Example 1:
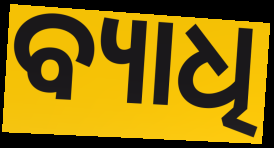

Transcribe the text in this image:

ବ୍ୟାଧି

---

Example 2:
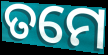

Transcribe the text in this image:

ତମେ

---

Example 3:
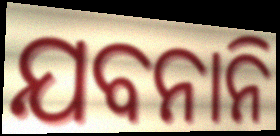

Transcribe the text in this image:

ଯବନାନି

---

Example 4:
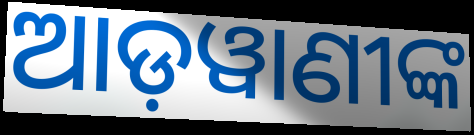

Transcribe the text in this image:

ଆଡ଼ୱାଣୀଙ୍କ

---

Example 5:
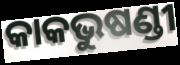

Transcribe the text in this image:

କାକଭୁଷଣ୍ଡୀ